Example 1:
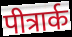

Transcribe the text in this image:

पीत्रार्क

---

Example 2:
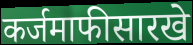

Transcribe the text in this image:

कर्जमाफीसारखे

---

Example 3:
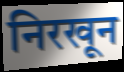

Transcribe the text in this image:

निरखून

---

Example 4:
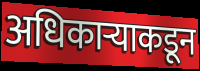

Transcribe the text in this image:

अधिकाऱ्याकडून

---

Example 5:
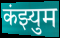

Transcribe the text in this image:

कंझ्युम